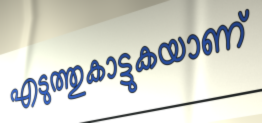
എടുത്തുകാട്ടുകയാണ്